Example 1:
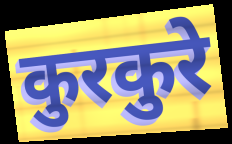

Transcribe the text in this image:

कुरकुरे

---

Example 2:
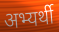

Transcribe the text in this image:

अभ्यर्थी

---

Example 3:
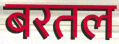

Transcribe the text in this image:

बरतल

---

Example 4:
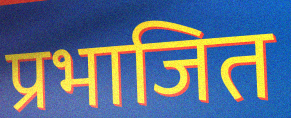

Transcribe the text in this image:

प्रभाजित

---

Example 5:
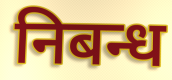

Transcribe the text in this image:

निबन्ध